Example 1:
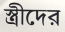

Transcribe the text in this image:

স্ত্রীদের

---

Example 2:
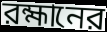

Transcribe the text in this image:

রহ্মানের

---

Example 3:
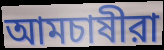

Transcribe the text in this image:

আমচাষীরা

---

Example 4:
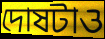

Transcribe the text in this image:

দোষটাও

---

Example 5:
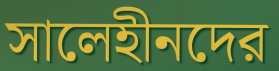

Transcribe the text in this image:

সালেহীনদের